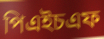
পিএইচএফ